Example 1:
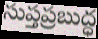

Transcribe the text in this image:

సుప్తప్రబుద్ధ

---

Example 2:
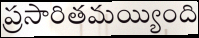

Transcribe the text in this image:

ప్రసారితమయ్యింది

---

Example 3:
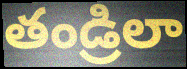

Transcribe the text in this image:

తండ్రిలా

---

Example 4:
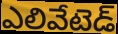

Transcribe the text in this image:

ఎలివేటెడ్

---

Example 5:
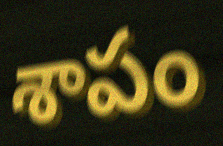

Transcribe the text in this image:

శాపం